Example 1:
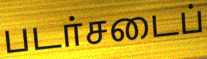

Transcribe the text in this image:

படர்சடைப்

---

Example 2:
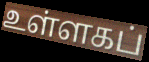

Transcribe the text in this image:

உள்ளகப்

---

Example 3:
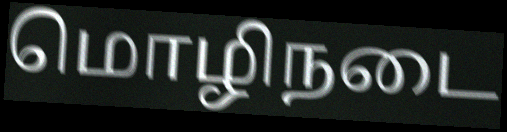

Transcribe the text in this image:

மொழிநடை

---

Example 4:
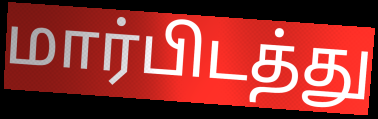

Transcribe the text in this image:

மார்பிடத்து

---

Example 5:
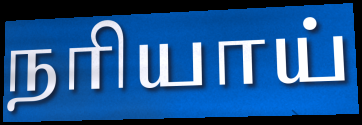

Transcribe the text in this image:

நரியாய்